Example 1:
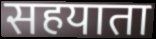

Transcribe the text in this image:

सहयाता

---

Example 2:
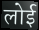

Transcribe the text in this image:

लोई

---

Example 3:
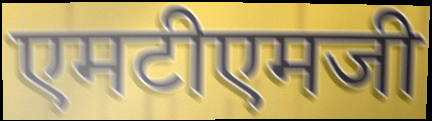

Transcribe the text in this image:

एमटीएमजी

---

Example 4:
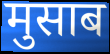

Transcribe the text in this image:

मुसाब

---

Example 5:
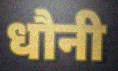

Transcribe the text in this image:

धौनी